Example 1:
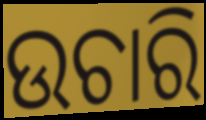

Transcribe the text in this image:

ଉଚାରି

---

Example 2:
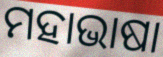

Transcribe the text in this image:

ମହାଭାଷା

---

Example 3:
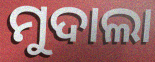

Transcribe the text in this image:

ମୁଦାଲା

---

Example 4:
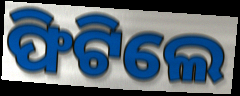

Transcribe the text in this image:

ଫିଟିଲେ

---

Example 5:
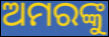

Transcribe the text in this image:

ଅମରଙ୍କୁ